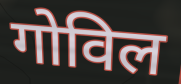
गोविल